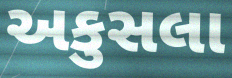
અકુસલા